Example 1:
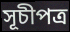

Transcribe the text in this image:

সূচীপত্র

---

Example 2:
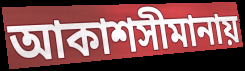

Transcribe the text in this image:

আকাশসীমানায়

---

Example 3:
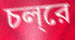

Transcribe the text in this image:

চল্‌রে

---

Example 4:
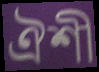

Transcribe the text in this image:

ঐশী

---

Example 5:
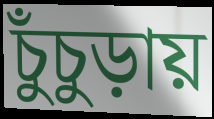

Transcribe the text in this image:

চুঁচুড়ায়